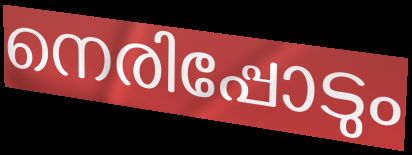
നെരിപ്പോടും